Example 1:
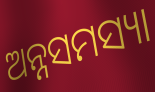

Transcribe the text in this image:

ଅନ୍ନସମସ୍ୟା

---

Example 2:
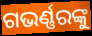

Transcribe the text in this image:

ଗଭର୍ଣ୍ଣରଙ୍କୁ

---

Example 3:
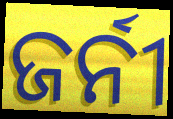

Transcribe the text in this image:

ଜର୍ନୀ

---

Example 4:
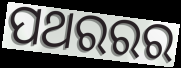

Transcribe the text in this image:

ପଥରରର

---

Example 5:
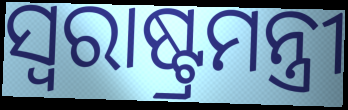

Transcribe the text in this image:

ସ୍ବରାଷ୍ଟ୍ରମନ୍ତ୍ରୀ